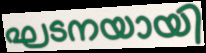
ഘടനയായി